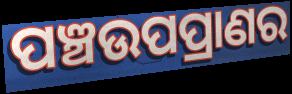
ପଞ୍ଚଉପପ୍ରାଣର